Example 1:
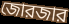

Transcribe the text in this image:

জোরজার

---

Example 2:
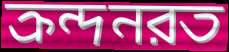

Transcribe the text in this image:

ক্রন্দনরত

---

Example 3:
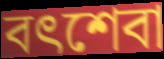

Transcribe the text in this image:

বৎশেবা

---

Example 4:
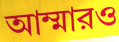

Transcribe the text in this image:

আম্মারও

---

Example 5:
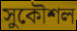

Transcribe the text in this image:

সুকৌশল